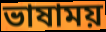
ভাষাময়